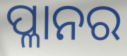
ପ୍ଳାନର